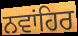
ਨਵਾਂਹਿਰ